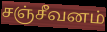
சஞ்சீவனம்